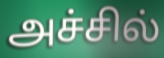
அச்சில்